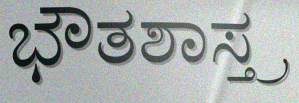
ಭೌತಶಾಸ್ತ್ರ